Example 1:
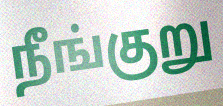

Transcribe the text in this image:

நீங்குறு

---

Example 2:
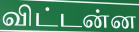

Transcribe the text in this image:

விட்டன்ன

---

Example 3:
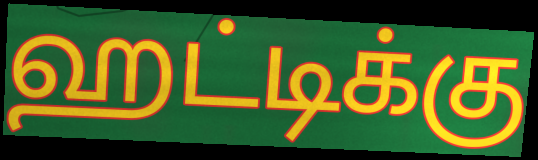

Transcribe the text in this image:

ஹட்டிக்கு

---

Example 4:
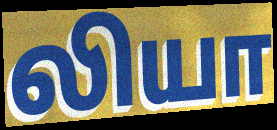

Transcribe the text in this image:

லியா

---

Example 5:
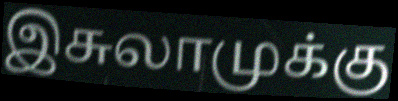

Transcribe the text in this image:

இசுலாமுக்கு